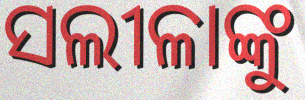
ସଲୀଳାଙ୍କୁ